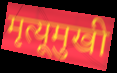
मृत्यूमुखी